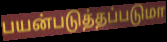
பயன்படுத்தப்படுமா